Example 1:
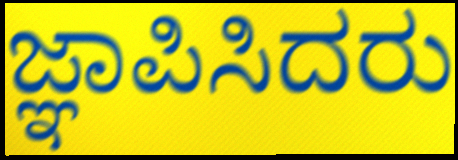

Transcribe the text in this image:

ಜ್ಞಾಪಿಸಿದರು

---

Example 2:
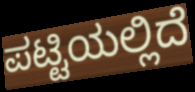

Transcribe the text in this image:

ಪಟ್ಟಿಯಲ್ಲಿದೆ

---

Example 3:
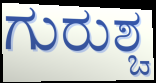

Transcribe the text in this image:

ಗುರುಶ್ಚ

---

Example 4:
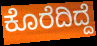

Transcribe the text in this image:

ಕೊರೆದಿದ್ದೆ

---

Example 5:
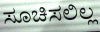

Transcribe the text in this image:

ಸೂಚಿಸಲಿಲ್ಲ